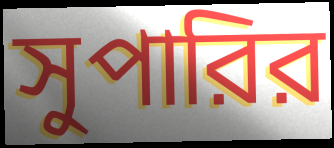
সুপারির